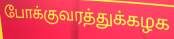
போக்குவரத்துக்கழக